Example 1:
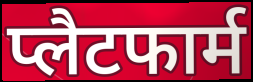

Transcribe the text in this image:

प्लैटफार्म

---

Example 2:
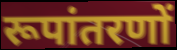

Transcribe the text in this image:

रूपांतरणों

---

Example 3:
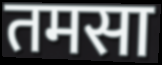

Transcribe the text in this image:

तमसा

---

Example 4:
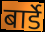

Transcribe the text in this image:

बार्डे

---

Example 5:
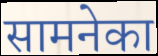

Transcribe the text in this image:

सामनेका